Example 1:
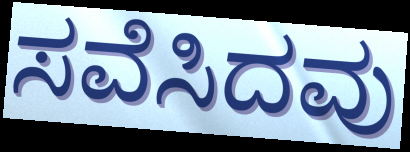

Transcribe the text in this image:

ಸವೆಸಿದವು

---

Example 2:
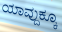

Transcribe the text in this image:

ಯಾವ್ದುಕ್ಕೂ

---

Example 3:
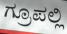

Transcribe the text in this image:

ಗ್ರೂಪಲ್ಲಿ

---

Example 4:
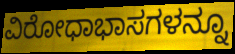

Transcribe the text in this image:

ವಿರೋಧಾಭಾಸಗಳನ್ನೂ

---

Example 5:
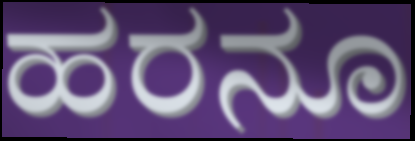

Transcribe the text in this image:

ಹರನೂ